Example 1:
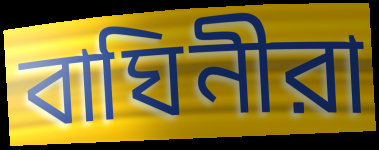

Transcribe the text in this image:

বাঘিনীরা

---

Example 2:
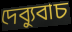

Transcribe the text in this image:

দেব্যুবাচ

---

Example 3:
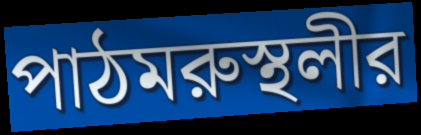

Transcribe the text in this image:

পাঠমরুস্থলীর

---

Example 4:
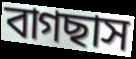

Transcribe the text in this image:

বাগছাস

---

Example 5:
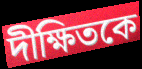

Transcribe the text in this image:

দীক্ষিতকে